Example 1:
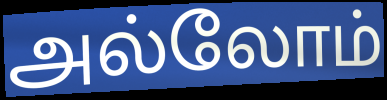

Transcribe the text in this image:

அல்லோம்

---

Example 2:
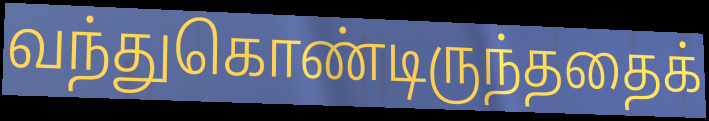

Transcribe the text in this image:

வந்துகொண்டிருந்ததைக்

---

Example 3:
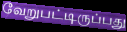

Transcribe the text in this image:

வேறுபட்டிருப்பது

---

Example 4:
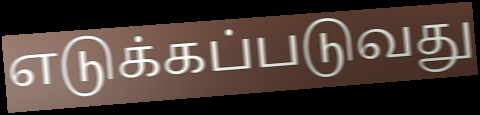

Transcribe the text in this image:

எடுக்கப்படுவது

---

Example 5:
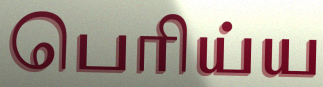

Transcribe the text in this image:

பெரிய்ய